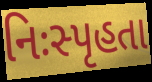
નિઃસ્પૃહતા